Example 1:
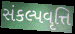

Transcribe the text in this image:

સંકલ્પવૃત્તિ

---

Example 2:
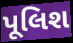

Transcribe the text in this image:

પૂલિશ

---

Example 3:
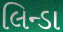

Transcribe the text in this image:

લિન્ડા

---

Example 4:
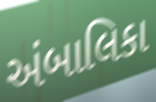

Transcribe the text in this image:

અંબાલિકા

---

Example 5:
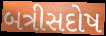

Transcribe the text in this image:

બત્રીસદોષ